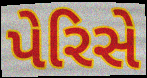
પેરિસે